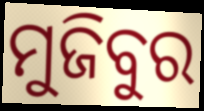
ମୁଜିବୁର